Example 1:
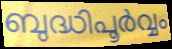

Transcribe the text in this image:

ബുദ്ധിപൂർവ്വം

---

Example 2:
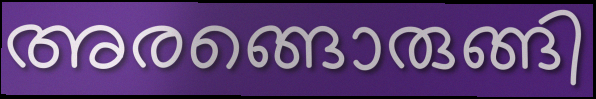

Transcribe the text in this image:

അരങ്ങൊരുങ്ങി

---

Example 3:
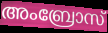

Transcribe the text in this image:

അംബ്രോസ്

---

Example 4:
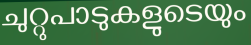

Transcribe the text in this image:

ചുറ്റുപാടുകളുടെയും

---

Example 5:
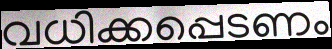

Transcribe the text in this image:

വധിക്കപ്പെടണം